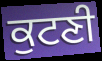
ਕੁਟਣੀ